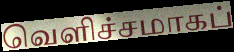
வெளிச்சமாகப்